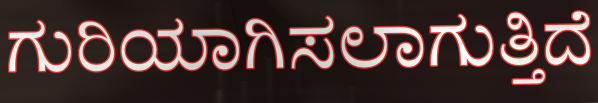
ಗುರಿಯಾಗಿಸಲಾಗುತ್ತಿದೆ